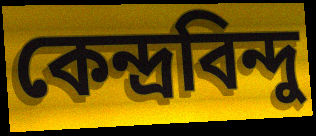
কেন্দ্ৰবিন্দু